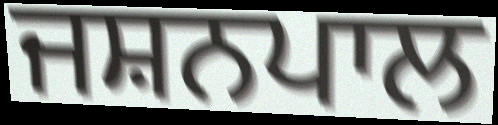
ਜਸ਼ਨਪਾਲ